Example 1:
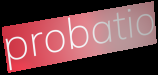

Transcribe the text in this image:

probatio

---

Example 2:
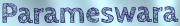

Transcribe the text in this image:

Parameswara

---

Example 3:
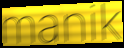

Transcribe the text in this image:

manik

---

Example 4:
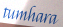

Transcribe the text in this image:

tumhara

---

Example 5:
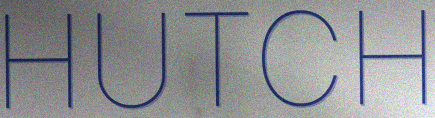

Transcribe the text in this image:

HUTCH